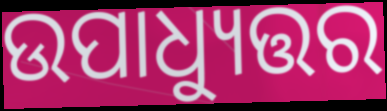
ଉପାଧ୍ୟୁତ୍ତର